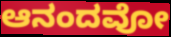
ಆನಂದವೋ